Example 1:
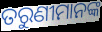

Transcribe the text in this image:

ତରୁଣୀମାନଙ୍କ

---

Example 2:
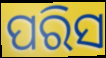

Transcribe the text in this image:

ପରିସ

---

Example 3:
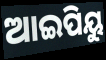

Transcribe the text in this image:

ଆଇପିୟୁ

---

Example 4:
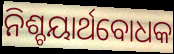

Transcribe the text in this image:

ନିଶ୍ଚୟାର୍ଥବୋଧକ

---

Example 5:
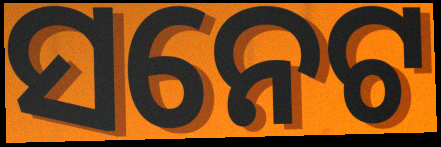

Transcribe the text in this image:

ସନେଟ